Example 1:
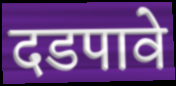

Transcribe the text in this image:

दडपावे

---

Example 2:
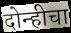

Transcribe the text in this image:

दोन्हीचा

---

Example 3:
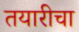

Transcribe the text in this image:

तयारीचा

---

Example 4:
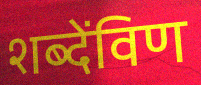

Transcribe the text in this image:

शब्देंविण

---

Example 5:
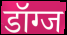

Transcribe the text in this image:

डॉग्ज